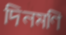
দিনমণি